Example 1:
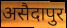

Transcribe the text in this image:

असैदापुर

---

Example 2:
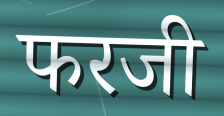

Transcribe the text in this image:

फरजी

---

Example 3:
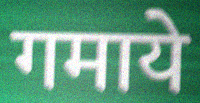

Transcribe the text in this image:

गमाये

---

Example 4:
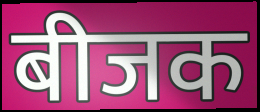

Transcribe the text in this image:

बीजक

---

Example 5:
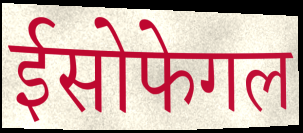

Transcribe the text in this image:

ईसोफेगल